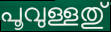
പൂവുള്ളതു്